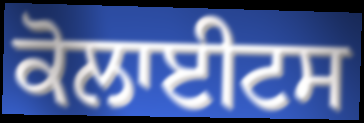
ਕੋਲਾਈਟਸ